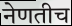
नेणतीच